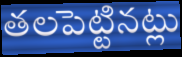
తలపెట్టినట్లు